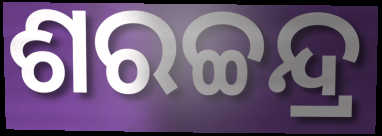
ଶରଚ୍ଚନ୍ଦ୍ର